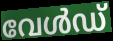
വേൾഡ്